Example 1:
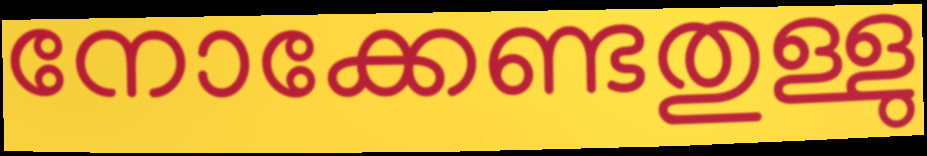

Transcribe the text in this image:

നോക്കേണ്ടതുള്ളു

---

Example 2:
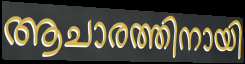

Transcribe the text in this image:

ആചാരത്തിനായി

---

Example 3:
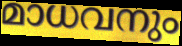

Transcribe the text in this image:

മാധവനും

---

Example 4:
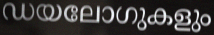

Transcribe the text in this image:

ഡയലോഗുകളും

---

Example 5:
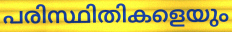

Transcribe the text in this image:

പരിസ്ഥിതികളെയും